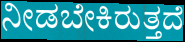
ನೀಡಬೇಕಿರುತ್ತದೆ